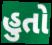
હુતો